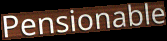
Pensionable